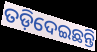
ତଡ଼ିଦେଇଛନ୍ତି